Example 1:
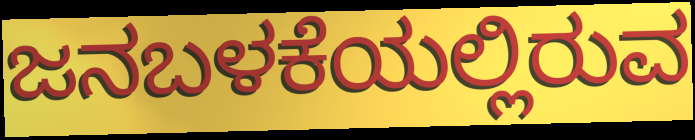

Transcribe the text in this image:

ಜನಬಳಕೆಯಲ್ಲಿರುವ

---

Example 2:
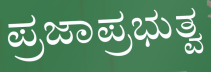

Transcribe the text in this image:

ಪ್ರಜಾಪ್ರಭುತ್ವ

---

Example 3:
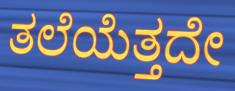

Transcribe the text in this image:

ತಲೆಯೆತ್ತದೇ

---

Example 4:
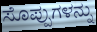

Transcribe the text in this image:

ಸೊಪ್ಪುಗಳನ್ನು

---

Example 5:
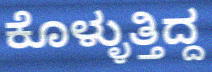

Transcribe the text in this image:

ಕೊಳ್ಳುತ್ತಿದ್ದ